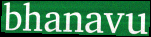
bhanavu